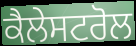
ਕੈਲੇਸਟਰੋਲ